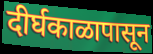
दीर्घकाळापासून